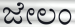
ಜೇಲಂ